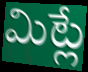
మిట్లే